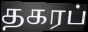
தகரப்